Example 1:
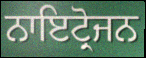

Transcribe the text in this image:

ਨਾਇਟ੍ਰੋਜਨ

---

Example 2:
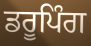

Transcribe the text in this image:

ਡਰੂਪਿੰਗ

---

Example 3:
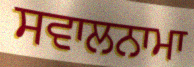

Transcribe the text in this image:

ਸਵਾਲਨਾਮਾ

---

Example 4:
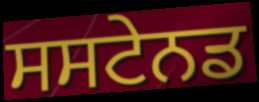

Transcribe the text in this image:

ਸਸਟੇਨਡ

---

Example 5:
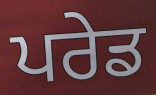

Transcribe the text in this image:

ਪਰੇਡ